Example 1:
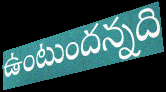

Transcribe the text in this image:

ఉంటుందన్నది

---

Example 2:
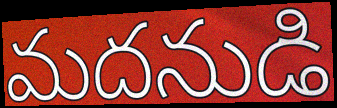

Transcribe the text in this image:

మదనుడి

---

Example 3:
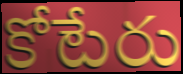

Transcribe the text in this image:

కోటేరు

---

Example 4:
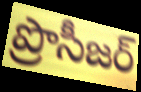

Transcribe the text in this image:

ప్రొసీజర్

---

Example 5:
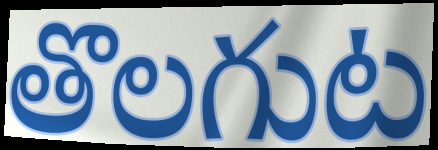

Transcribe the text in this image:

తొలగుట